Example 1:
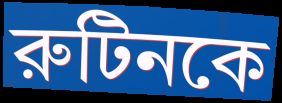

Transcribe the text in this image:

রুটিনকে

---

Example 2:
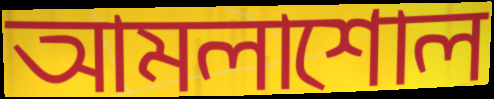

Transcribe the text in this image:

আমলাশোল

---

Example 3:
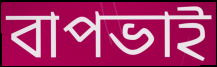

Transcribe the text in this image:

বাপভাই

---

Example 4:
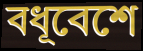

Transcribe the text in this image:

বধূবেশে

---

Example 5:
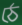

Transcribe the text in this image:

ঠে